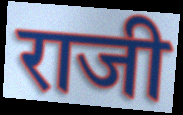
राजी